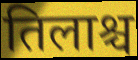
तिलाश्च